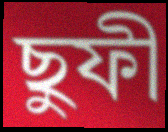
ছুফী